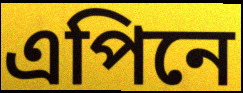
এপিনে